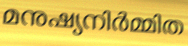
മനുഷ്യനിർമ്മിത